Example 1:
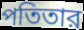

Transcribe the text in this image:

পতিতার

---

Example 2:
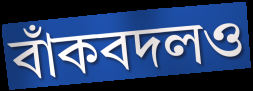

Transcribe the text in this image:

বাঁকবদলও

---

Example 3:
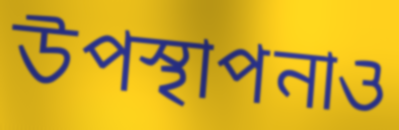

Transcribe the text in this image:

উপস্থাপনাও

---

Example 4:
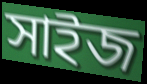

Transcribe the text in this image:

সাইজ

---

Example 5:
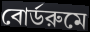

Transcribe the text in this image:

বোর্ডরুমে